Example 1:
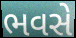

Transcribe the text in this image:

ભવસે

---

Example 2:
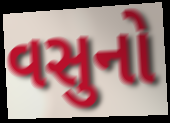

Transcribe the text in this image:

વસુનો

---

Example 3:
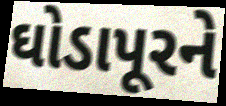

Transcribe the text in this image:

ઘોડાપૂરને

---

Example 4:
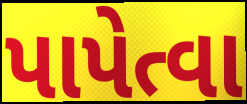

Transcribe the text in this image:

પાપેત્વા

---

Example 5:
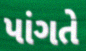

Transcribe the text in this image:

પાંગતે